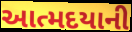
આત્મદયાની